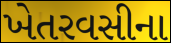
ખેતરવસીના